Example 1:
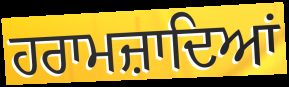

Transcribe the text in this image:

ਹਰਾਮਜ਼ਾਦਿਆਂ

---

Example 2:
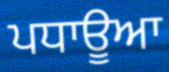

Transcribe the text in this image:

ਪਧਾਊਆ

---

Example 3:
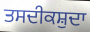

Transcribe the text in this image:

ਤਸਦੀਕਸ਼ੁਦਾ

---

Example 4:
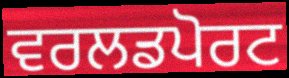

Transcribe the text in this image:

ਵਰਲਡਪੋਰਟ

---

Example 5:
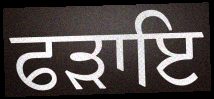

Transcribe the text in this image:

ਫੜਾਇ